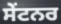
ਸੇਂਟਨਰ